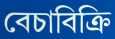
বেচাবিক্রি